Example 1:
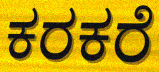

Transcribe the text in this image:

ಕರಕರೆ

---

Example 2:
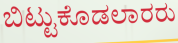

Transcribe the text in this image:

ಬಿಟ್ಟುಕೊಡಲಾರರು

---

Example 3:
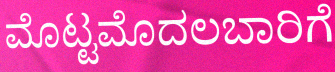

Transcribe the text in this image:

ಮೊಟ್ಟಮೊದಲಬಾರಿಗೆ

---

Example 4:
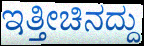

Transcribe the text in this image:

ಇತ್ತೀಚಿನದ್ದು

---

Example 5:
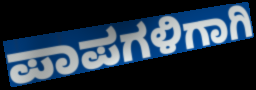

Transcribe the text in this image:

ಪಾಪಗಳಿಗಾಗಿ